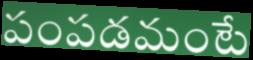
పంపడమంటే